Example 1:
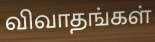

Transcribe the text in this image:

விவாதங்கள்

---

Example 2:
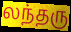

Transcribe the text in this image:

லந்தரு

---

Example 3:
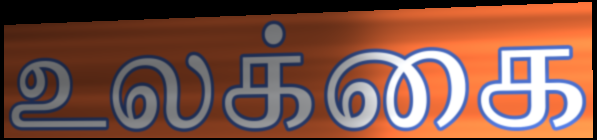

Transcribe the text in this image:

உலக்கை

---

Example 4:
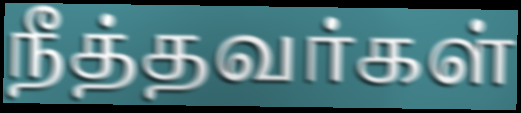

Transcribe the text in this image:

நீத்தவர்கள்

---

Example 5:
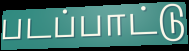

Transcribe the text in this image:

படப்பாட்டு